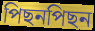
পিছনপিছন